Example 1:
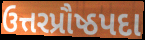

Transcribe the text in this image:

ઉત્તરપ્રૌષ્ઠપદા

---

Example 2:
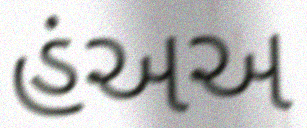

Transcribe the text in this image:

હંઅઅ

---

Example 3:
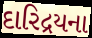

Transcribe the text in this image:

દારિદ્રયના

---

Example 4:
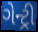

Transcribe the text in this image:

ગેન્ટ્રી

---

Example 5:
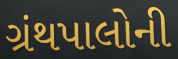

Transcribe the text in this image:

ગ્રંથપાલોની